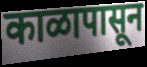
काळापासून